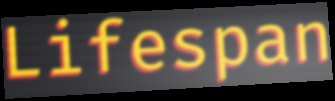
Lifespan